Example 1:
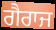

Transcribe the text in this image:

ਗੈਰਾਜ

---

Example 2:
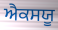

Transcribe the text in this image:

ਐਕਸਯੂ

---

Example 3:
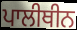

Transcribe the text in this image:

ਪਾਲੀਥੀਨ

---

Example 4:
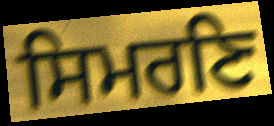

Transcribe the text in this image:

ਸਿਮਰਣਿ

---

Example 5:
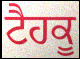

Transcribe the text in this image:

ਟੈਹਕੂ